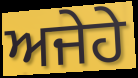
ਅਜੇਹੇ